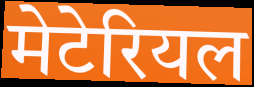
मेटेरियल